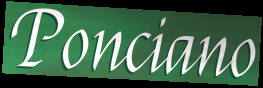
Ponciano